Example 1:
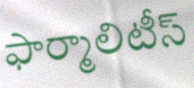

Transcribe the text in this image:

ఫార్మాలిటీస్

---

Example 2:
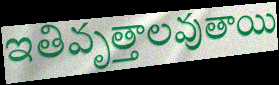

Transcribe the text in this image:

ఇతివృత్తాలవుతాయి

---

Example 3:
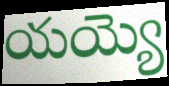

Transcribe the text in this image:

యయ్యె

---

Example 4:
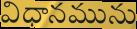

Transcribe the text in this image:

విధానమును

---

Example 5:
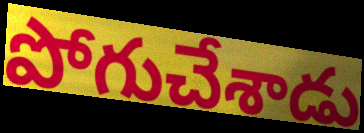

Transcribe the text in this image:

పోగుచేశాడు